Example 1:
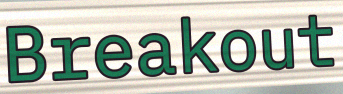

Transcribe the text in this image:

Breakout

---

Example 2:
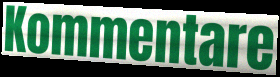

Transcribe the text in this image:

Kommentare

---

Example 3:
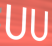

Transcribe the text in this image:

UU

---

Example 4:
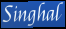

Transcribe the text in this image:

Singhal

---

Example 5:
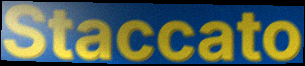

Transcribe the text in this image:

Staccato